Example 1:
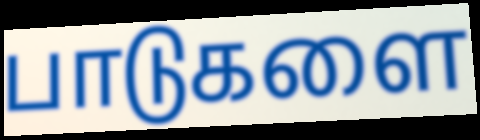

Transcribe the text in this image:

பாடுகளை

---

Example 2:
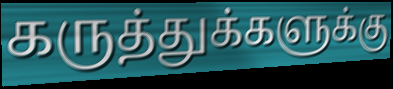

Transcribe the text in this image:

கருத்துக்களுக்கு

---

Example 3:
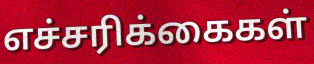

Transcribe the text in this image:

எச்சரிக்கைகள்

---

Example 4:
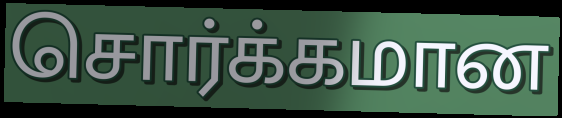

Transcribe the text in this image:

சொர்க்கமான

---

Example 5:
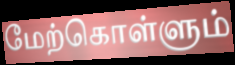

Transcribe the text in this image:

மேற்கொள்ளும்